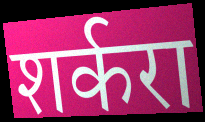
शर्करा